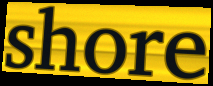
shore